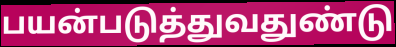
பயன்படுத்துவதுண்டு